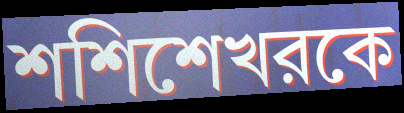
শশিশেখরকে